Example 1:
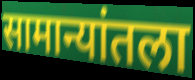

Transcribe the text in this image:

सामान्यांतला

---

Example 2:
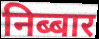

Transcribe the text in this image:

निब्बार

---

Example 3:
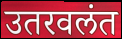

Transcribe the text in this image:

उतरवलंत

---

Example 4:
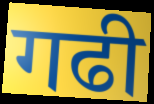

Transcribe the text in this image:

गढी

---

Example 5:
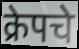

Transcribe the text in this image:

क्रेपचे